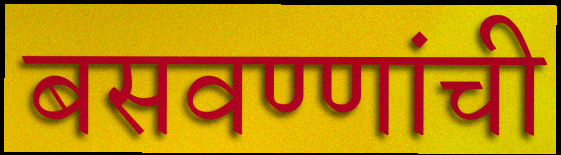
बसवण्णांची